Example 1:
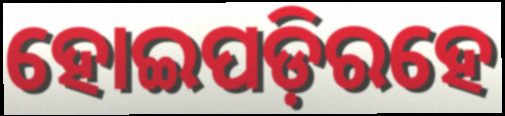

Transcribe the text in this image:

ହୋଇପଡ଼ିରହେ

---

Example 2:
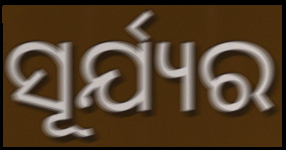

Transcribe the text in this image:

ସୂର୍ଯ୍ୟର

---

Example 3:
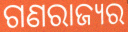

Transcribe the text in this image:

ଗଣରାଜ୍ୟର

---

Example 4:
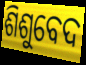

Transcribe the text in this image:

ଶିଶୁବେଦ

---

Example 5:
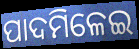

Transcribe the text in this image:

ପାଦମିଳେଇ